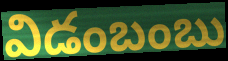
విడంబంబు